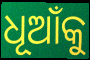
ଧୂଆଁକୁ